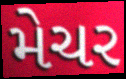
મેચર